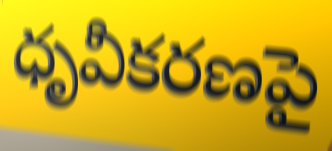
ధృవీకరణపై